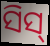
ସିସ୍